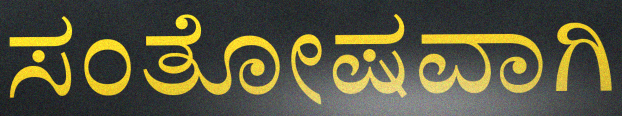
ಸಂತೋಷವಾಗಿ